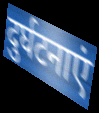
दुर्घटनाएं